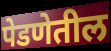
पेडणेतील